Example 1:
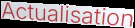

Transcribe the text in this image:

Actualisation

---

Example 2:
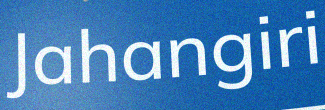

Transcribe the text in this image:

Jahangiri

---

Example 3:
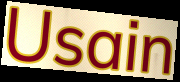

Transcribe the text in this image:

Usain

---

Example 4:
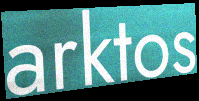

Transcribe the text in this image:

arktos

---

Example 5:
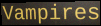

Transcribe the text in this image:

Vampires